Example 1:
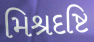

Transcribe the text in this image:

મિશ્રદષ્ટિ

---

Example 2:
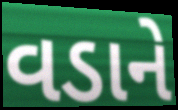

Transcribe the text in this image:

વડાને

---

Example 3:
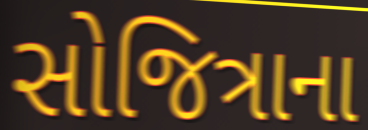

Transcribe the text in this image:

સોજિત્રાના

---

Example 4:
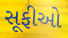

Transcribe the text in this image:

સૂફીઓ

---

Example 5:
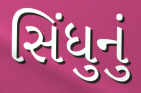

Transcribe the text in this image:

સિંધુનું